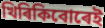
খিৰিকিবোৰেই